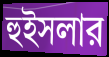
হুইসলার